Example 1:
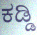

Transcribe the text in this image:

ಕಡ್ಡಿ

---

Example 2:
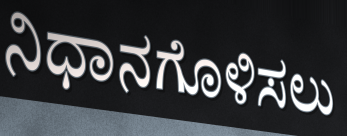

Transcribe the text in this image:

ನಿಧಾನಗೊಳಿಸಲು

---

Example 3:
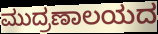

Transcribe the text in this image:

ಮುದ್ರಣಾಲಯದ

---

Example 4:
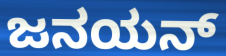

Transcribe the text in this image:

ಜನಯನ್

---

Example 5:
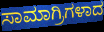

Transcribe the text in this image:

ಸಾಮಾಗ್ರಿಗಳಾದ